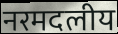
नरमदलीय